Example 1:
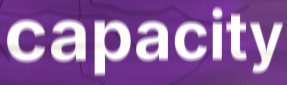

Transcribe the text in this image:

capacity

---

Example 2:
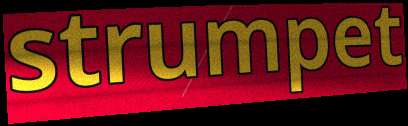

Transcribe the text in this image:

strumpet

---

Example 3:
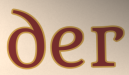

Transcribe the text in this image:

der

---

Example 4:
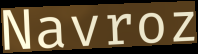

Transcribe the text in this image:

Navroz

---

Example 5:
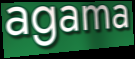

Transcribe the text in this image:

agama